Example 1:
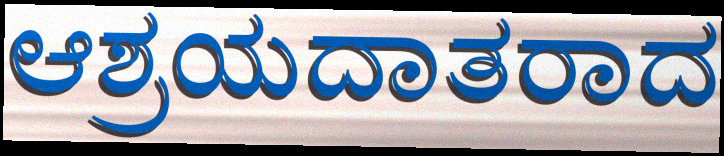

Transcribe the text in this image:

ಆಶ್ರಯದಾತರಾದ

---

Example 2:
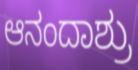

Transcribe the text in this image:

ಆನಂದಾಶ್ರು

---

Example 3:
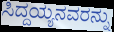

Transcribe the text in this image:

ಸಿದ್ದಯ್ಯನವರನ್ನು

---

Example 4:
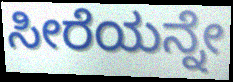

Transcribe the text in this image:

ಸೀರೆಯನ್ನೇ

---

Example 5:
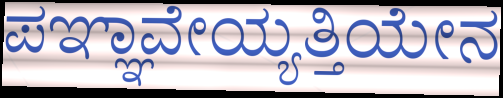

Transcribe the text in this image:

ಪಞ್ಞಾವೇಯ್ಯತ್ತಿಯೇನ